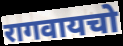
रागवायचो